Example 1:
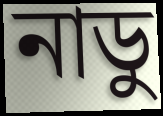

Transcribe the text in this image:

নাডু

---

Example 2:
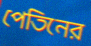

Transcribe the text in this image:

পেতিনের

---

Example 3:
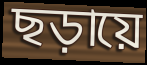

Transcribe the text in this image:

ছড়ায়ে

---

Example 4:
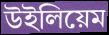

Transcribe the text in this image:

উইলিয়েম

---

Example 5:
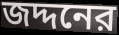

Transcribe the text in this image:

জদ্দনের